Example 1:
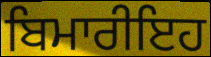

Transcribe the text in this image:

ਬਿਮਾਰੀਇਹ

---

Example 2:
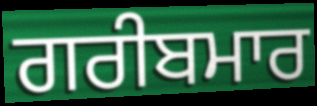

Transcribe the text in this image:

ਗਰੀਬਮਾਰ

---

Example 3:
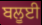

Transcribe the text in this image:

ਬਲੂਈ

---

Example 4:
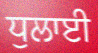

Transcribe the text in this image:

ਧੁਲਾਈ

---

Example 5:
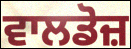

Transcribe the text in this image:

ਵਾਲਡੋਜ਼